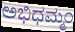
ಅಭಿಧಮ್ಮಂ